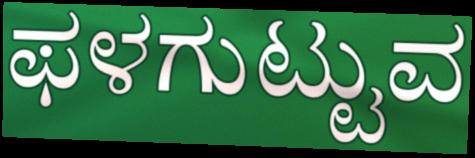
ಫಳಗುಟ್ಟುವ